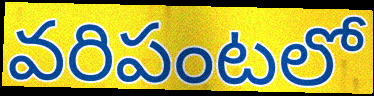
వరిపంటలో